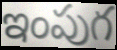
ఇంపుగ